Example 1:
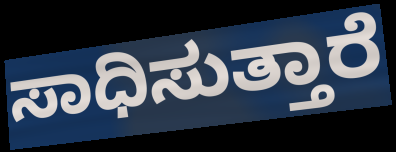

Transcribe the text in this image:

ಸಾಧಿಸುತ್ತಾರೆ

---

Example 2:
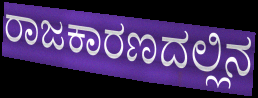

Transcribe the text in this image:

ರಾಜಕಾರಣದಲ್ಲಿನ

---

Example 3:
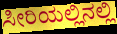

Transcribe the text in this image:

ಸೀರಿಯಲ್ಲಿನಲ್ಲಿ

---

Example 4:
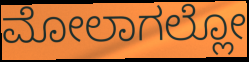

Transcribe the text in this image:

ಮೋಲಾಗಲ್ಲೋ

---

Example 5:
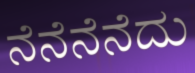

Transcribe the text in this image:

ನೆನೆನೆನೆದು